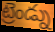
ట్రెండ్ను